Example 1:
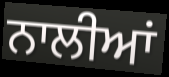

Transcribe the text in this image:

ਨਾਲੀਆਂ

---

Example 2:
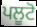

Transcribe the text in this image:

ਪਲੂਟੋ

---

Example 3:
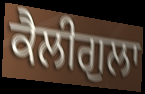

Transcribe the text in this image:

ਕੈਲੀਗੁਲਾ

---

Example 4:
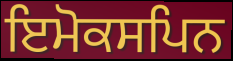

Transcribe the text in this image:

ਇਮੋਕਸਪਿਨ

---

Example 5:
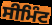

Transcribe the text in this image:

ਸੀਮਿੰਟ